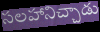
సలహానిచ్చాడు